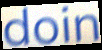
doin